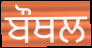
ਬੌਥਲ